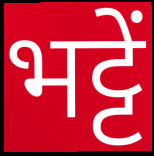
भट्टें